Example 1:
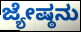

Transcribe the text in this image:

ಜ್ಯೇಷ್ಠನು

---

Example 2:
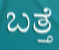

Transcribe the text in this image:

ಬತ್ತೆ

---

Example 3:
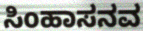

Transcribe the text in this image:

ಸಿಂಹಾಸನವ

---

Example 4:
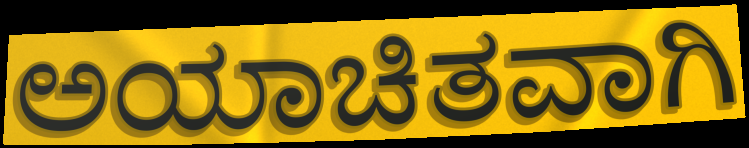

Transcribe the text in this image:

ಅಯಾಚಿತವಾಗಿ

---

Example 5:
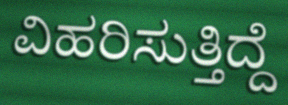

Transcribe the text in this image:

ವಿಹರಿಸುತ್ತಿದ್ದೆ